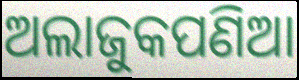
ଅଲାଜୁକପଣିଆ